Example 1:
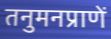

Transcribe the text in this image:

तनुमनप्राणें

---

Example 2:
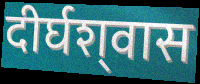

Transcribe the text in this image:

दीर्घश्वास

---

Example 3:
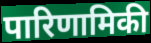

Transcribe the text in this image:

पारिणामिकी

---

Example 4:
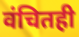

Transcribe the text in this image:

वंचितही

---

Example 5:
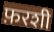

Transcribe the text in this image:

फ़रशी